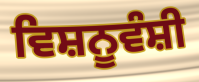
ਵਿਸ਼ਨੂਵੰਸ਼ੀ